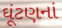
ઘૂંટણનાં